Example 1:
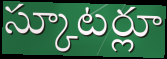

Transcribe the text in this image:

స్కూటర్లూ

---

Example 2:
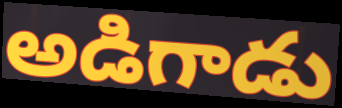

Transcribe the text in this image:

అడిగాడు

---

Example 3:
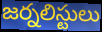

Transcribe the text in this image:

జర్నలిస్టులు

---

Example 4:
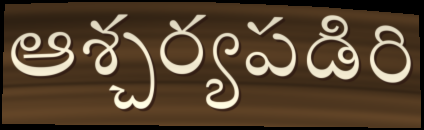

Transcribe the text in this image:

ఆశ్చర్యపడిరి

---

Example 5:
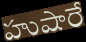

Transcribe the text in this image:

హుషారే